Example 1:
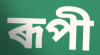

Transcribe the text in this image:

ৰূপী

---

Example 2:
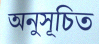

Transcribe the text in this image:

অনুসূচিত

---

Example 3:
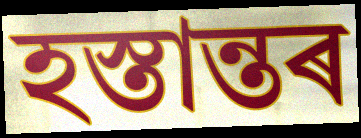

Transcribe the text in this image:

হস্তান্তৰ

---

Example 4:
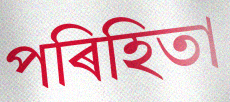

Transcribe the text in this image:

পৰিহিতা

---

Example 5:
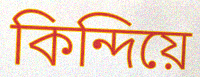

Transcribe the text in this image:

কিন্দিয়ে